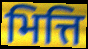
भित्ति